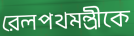
রেলপথমন্ত্রীকে